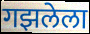
गझलेला